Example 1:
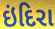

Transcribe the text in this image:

ઇંદિરા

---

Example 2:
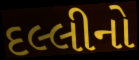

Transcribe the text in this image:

દલ્લીનો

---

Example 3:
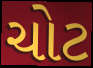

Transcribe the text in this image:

ચોટ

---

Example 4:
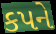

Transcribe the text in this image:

કપને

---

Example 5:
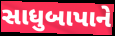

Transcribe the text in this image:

સાધુબાપાને